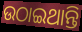
ଉଠାଇଥାନ୍ତି